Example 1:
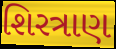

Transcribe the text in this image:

શિરત્રાણ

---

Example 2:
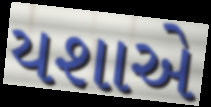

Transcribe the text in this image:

યશાએ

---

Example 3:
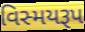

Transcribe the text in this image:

વિસ્મયરૂપ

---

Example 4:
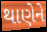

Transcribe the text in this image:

થાણેને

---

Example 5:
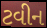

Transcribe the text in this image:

ટવીન